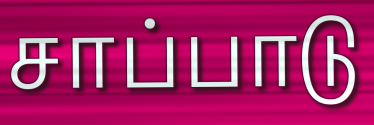
சாப்பாடு